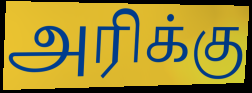
அரிக்கு